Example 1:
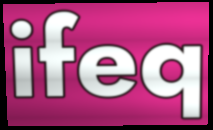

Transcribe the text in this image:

ifeq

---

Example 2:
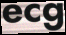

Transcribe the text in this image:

ecg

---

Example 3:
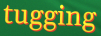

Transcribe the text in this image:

tugging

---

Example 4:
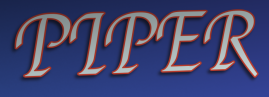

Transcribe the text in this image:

PIPER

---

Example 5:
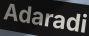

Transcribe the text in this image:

Adaradi